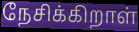
நேசிக்கிறாள்